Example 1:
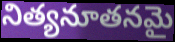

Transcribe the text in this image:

నిత్యనూతనమై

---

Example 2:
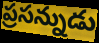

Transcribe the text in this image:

ప్రసన్నుడు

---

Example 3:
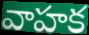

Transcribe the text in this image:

వాహక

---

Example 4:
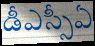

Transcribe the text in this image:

డీఎస్సీఏ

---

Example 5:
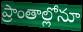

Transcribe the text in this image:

ప్రాంతాల్లోనూ